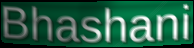
Bhashani